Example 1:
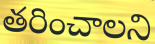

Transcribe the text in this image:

తరించాలని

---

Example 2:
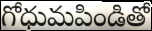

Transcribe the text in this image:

గోధుమపిండితో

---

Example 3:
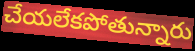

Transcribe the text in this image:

చేయలేకపోతున్నారు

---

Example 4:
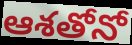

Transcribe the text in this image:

ఆశతోనో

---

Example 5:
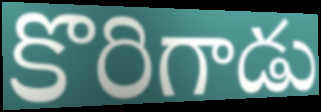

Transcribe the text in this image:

కొరిగాడు